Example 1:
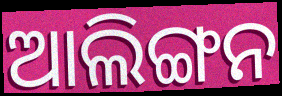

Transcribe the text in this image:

ଆଲିଙ୍ଗନ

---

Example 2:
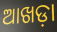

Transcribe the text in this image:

ଆଖଡ଼ା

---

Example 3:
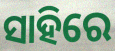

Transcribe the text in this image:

ସାହିରେ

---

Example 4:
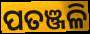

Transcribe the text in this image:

ପତଞ୍ଜଳି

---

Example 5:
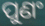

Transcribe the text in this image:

ପୁଣଂ